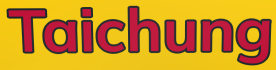
Taichung